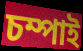
চম্পাই